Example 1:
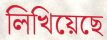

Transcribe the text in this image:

লিখিয়েছে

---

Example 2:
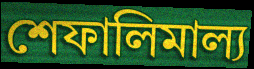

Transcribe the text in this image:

শেফালিমাল্য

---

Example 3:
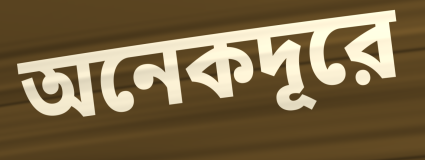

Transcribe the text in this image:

অনেকদূরে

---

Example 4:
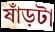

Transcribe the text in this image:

ষাঁড়টা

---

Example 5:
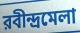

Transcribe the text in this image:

রবীন্দ্রমেলা